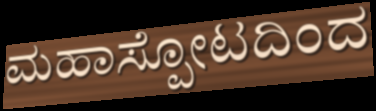
ಮಹಾಸ್ಪೋಟದಿಂದ